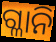
ଗ୍ଳାନି